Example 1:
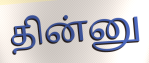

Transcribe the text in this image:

தின்னு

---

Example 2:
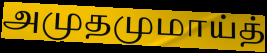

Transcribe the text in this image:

அமுதமுமாய்த்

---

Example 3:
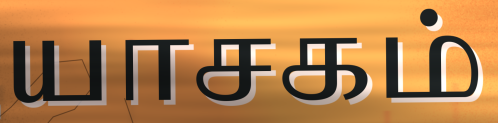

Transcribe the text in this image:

யாசகம்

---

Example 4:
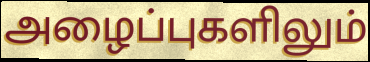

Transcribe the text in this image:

அழைப்புகளிலும்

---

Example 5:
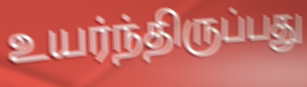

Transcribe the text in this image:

உயர்ந்திருப்பது